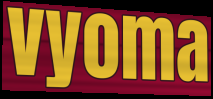
vyoma